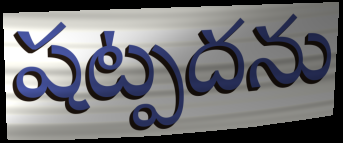
షట్పదను